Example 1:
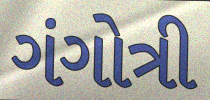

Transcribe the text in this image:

ગંગોત્રી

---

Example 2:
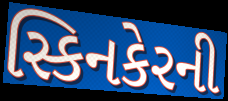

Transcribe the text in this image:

સ્કિનકેરની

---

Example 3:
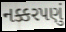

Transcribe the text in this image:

નક્કરપણું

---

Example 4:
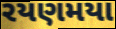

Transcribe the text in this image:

રયણમયા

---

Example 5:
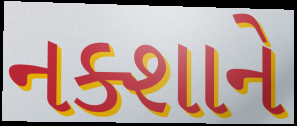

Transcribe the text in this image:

નક્શાને